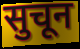
सुचून